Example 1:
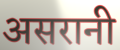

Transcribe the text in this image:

असरानी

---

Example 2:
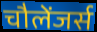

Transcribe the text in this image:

चौलेंजर्स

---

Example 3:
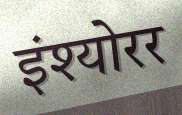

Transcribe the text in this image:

इंश्योरर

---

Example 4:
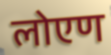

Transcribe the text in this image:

लोएण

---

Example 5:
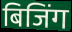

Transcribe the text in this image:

बिजिंग